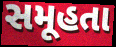
સમૂહતા